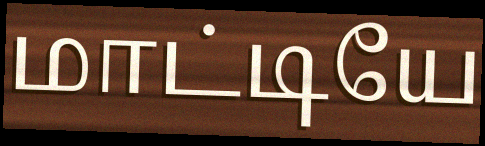
மாட்டியே